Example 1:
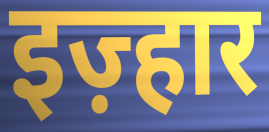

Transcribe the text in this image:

इज़्हार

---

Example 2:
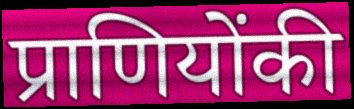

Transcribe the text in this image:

प्राणियोंकी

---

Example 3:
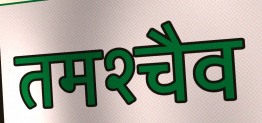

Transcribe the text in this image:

तमश्चैव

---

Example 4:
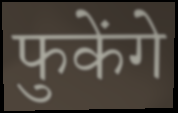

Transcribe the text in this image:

फुकेंगे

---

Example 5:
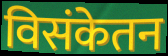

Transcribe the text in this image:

विसंकेतन